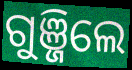
ଗୁଞ୍ଜିଲେ